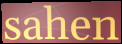
sahen